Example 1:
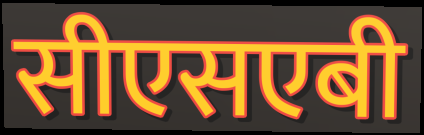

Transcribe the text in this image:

सीएसएबी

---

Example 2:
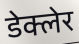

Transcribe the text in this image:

डेक्लेर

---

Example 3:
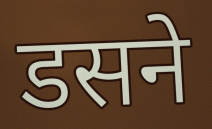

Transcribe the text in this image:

डसने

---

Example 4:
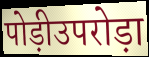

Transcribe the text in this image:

पोड़ीउपरोड़ा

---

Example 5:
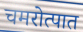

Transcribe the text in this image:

चमरोत्पात